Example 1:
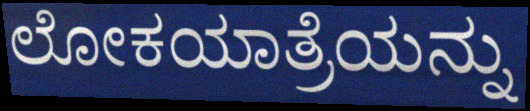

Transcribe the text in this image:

ಲೋಕಯಾತ್ರೆಯನ್ನು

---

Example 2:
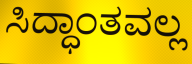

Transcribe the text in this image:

ಸಿದ್ಧಾಂತವಲ್ಲ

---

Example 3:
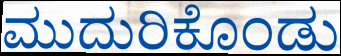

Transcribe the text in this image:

ಮುದುರಿಕೊಂಡು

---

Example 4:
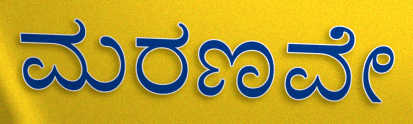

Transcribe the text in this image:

ಮರಣವೇ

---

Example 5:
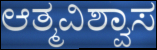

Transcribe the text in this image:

ಆತ್ಮವಿಶ್ವಾಸ